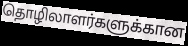
தொழிலாளர்களுக்கான